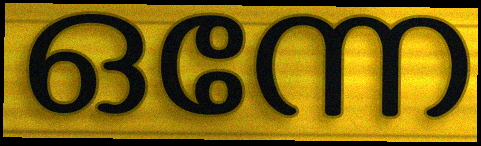
ഒന്നേ